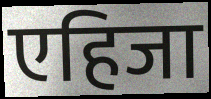
एहिजा